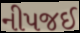
નીપજઈ